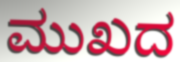
ಮುಖದ